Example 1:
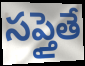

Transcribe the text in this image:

సప్తైతే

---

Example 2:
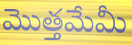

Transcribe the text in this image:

మొత్తమేమీ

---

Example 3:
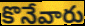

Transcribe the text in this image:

కొనేవారు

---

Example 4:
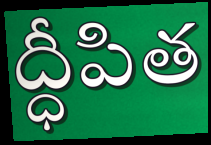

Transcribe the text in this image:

ద్ధీపిత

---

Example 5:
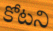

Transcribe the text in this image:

కోటని